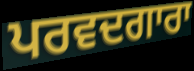
ਪਰਵਦਗਾਰਾ